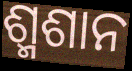
ଶ୍ମଶାନ